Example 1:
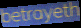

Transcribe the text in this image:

betrayeth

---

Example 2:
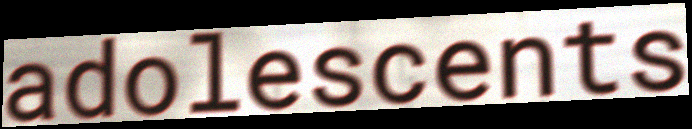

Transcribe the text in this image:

adolescents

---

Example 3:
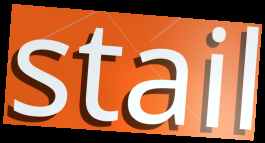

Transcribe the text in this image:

stail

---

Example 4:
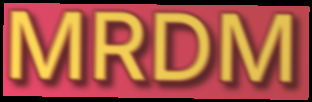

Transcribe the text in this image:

MRDM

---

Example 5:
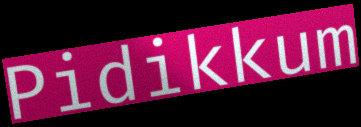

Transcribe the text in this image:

Pidikkum